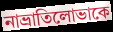
নাভ্রাতিলোভাকে